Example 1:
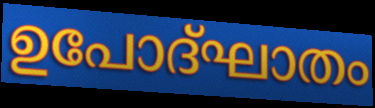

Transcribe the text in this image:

ഉപോദ്ഘാതം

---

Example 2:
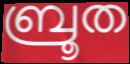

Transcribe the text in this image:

ബ്രൂത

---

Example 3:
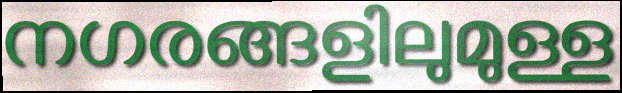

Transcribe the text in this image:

നഗരങ്ങളിലുമുള്ള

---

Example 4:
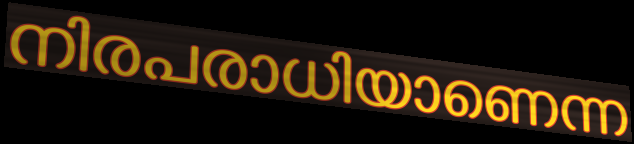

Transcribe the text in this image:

നിരപരാധിയാണെന്ന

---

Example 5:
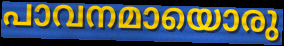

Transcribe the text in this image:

പാവനമായൊരു